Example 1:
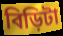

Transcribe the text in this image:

বিড়িটা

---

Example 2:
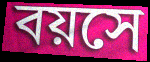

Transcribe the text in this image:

বয়সে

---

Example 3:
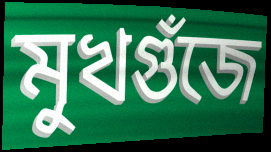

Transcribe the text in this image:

মুখগুঁজে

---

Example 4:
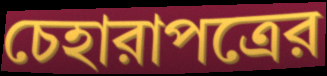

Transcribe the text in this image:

চেহারাপত্রের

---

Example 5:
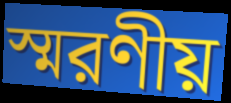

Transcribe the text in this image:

স্মরণীয়